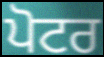
ਪੋਟਰ